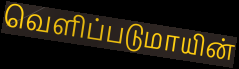
வெளிப்படுமாயின்